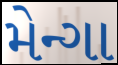
મેન્ગા